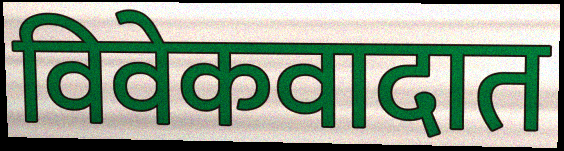
विवेकवादात